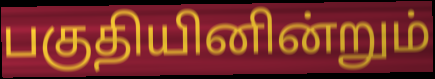
பகுதியினின்றும்